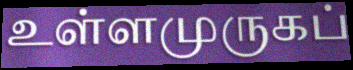
உள்ளமுருகப்